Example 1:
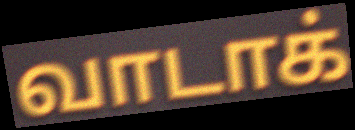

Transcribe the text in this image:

வாடாக்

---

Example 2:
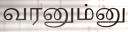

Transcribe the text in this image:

வரனும்னு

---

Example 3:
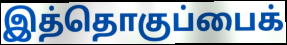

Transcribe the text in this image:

இத்தொகுப்பைக்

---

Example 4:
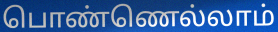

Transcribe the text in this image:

பொண்ணெல்லாம்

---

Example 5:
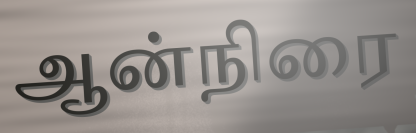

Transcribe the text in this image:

ஆன்நிரை